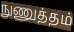
நுணுத்தம்